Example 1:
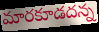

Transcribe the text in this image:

మారకూడదన్న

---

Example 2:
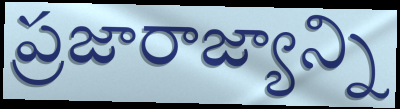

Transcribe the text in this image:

ప్రజారాజ్యాన్ని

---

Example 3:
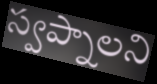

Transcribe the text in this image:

స్వప్నాలని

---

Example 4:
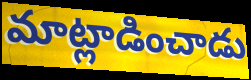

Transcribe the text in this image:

మాట్లాడించాడు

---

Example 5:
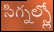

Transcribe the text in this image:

సిగ్నల్స్లో